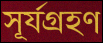
সূর্যগ্রহণ